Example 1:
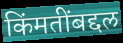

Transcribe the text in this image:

किंमतींबद्दल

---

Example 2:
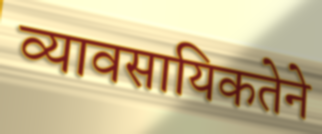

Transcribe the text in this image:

व्यावसायिकतेने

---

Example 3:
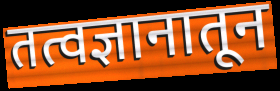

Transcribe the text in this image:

तत्वज्ञानातून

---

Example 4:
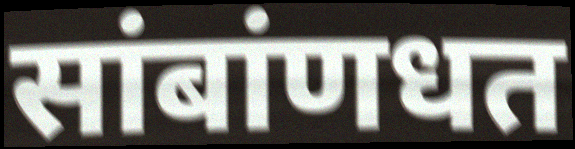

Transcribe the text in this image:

सांबांणधत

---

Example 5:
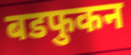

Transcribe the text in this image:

बडफुकन